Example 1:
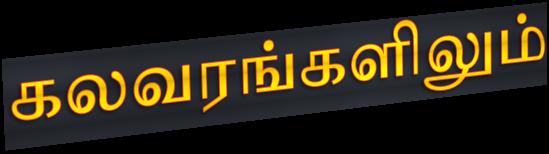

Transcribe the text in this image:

கலவரங்களிலும்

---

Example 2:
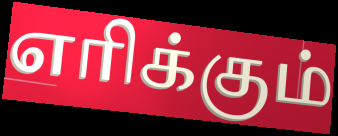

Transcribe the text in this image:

எரிக்கும்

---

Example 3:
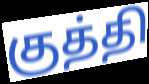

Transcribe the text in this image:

குத்தி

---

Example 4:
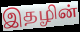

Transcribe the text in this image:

இதழின்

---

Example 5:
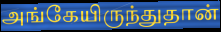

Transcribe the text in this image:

அங்கேயிருந்துதான்